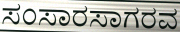
ಸಂಸಾರಸಾಗರವ